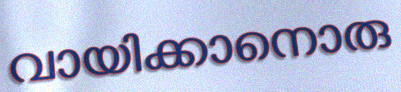
വായിക്കാനൊരു